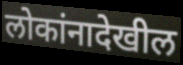
लोकांनादेखील